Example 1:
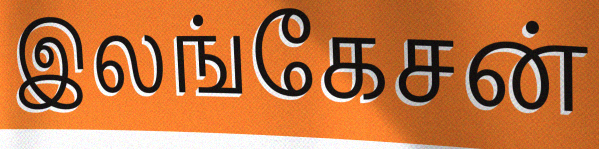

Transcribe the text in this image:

இலங்கேசன்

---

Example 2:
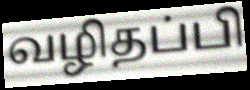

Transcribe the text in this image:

வழிதப்பி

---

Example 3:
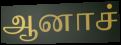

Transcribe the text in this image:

ஆனாச்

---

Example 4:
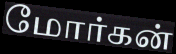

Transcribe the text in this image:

மோர்கன்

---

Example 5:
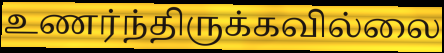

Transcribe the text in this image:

உணர்ந்திருக்கவில்லை